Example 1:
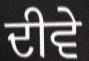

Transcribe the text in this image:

ਦੀਵੇ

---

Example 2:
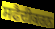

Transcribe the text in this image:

ਸਫੈਦੀਕਰਨ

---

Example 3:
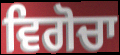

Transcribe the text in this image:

ਵਿਗੋਚਾ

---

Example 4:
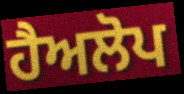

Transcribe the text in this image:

ਹੈਅਲੋਪ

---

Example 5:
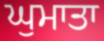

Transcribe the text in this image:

ਘੁਮਾਤਾ